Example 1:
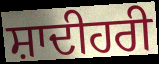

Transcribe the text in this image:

ਸ਼ਾਦੀਹਰੀ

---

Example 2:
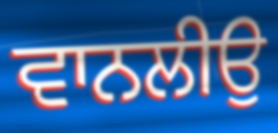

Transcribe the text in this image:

ਵਾਨਲੀਉ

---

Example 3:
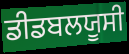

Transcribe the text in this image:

ਡੀਡਬਲਯੂਸੀ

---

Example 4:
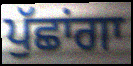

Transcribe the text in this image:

ਪੁੱਛਾਂਗਾ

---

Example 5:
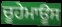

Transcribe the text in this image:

ਚੂਹੇਮਾਊਸ